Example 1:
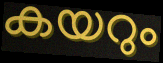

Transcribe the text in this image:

കയറും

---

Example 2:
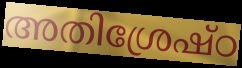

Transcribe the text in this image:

അതിശ്രേഷ്ഠ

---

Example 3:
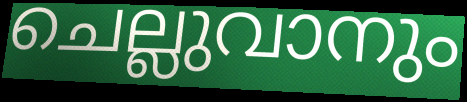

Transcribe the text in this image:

ചെല്ലുവാനും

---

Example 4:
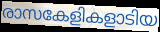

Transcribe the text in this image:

രാസകേളികളാടിയ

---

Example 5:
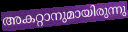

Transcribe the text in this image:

അകറ്റാനുമായിരുന്നു